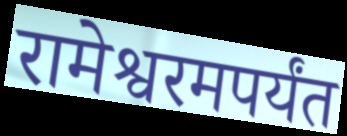
रामेश्वरमपर्यंत